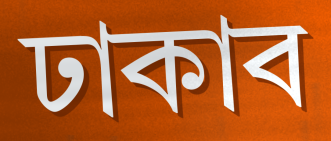
ঢাকাব